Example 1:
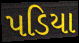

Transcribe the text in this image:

પડિયા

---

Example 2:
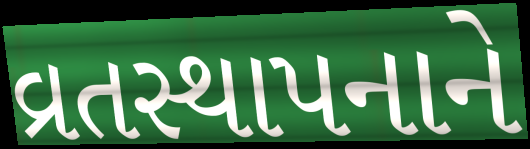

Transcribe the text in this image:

વ્રતસ્થાપનાને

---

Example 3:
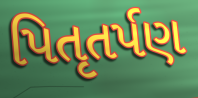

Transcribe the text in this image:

પિતૃતર્પણ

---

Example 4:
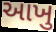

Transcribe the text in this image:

આખુ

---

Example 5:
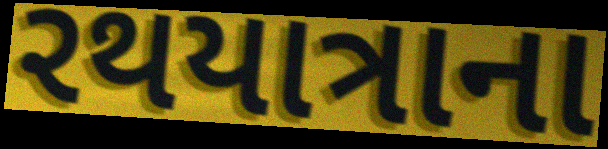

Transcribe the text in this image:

રથયાત્રાના